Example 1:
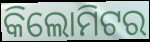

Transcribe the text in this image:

କିଲୋମିଟର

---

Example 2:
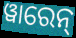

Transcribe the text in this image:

ୱାରେନ୍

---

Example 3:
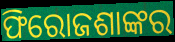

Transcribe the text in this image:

ଫିରୋଜଶାଙ୍କର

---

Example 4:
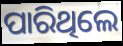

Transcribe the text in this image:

ପାରିଥିଲେ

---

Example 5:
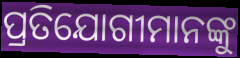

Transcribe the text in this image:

ପ୍ରତିଯୋଗୀମାନଙ୍କୁ